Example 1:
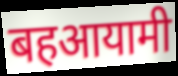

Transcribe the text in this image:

बहआयामी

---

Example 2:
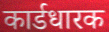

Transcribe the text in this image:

कार्डधारक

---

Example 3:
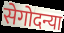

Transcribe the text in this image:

सेगोदन्या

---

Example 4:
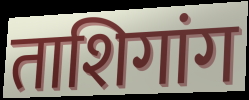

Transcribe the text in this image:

ताशिगांग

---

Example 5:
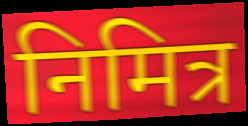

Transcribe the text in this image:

निमित्र